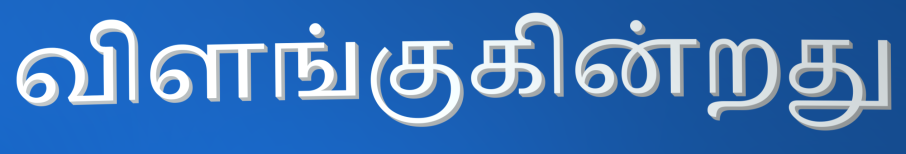
விளங்குகின்றது